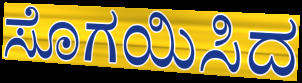
ಸೊಗಯಿಸಿದ